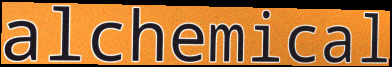
alchemical